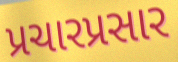
પ્રચારપ્રસાર